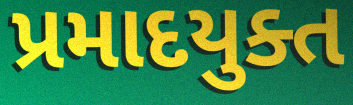
પ્રમાદયુક્ત